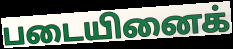
படையினைக்